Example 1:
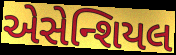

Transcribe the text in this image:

એસેન્શિયલ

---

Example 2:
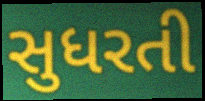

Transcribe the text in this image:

સુધરતી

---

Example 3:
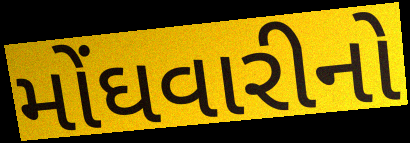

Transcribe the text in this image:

મોંઘવારીનો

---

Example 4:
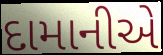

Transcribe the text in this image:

દામાનીએ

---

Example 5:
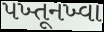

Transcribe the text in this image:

પખ્તૂનખ્વા